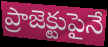
ప్రాజెక్టుపైనే